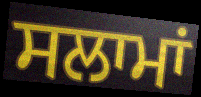
ਸਲਾਮਾਂ